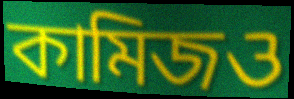
কামিজও